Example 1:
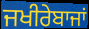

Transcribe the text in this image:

ਜਖੀਰੇਬਾਜਾਂ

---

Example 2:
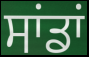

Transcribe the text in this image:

ਸਾਂਡਾਂ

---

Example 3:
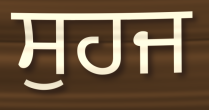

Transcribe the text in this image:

ਸੁਹਜ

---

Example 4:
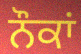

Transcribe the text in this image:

ਨੌਕਾਂ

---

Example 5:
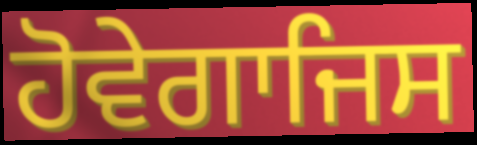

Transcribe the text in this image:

ਹੋਵੇਗਾਜਿਸ